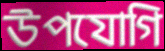
উপযোগি